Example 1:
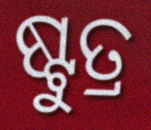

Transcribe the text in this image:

ଷ୍ଟୁତ୍ର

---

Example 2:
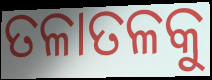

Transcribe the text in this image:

ତଳାତଳକୁ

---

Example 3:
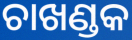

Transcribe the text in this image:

ଚାଖଣ୍ଡକ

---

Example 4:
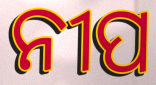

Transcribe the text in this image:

ନୀପ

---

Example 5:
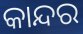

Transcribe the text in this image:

କାନ୍ଦର